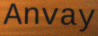
Anvay